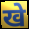
खे